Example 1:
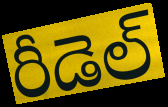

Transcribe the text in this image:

రీడెల్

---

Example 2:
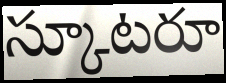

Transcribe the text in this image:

స్కూటరూ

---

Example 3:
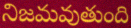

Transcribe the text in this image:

నిజమవుతుంది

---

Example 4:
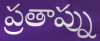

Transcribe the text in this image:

ప్రతాప్ను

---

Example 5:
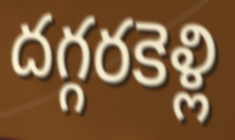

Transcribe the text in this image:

దగ్గరకెళ్లి